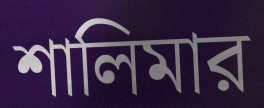
শালিমার